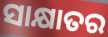
ସାକ୍ଷାତର